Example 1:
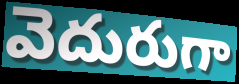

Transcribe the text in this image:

వెదురుగా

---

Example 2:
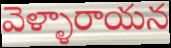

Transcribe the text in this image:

వెళ్ళారాయన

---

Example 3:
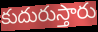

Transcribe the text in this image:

కుదురుస్తారు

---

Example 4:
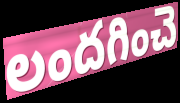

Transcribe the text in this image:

లందగించె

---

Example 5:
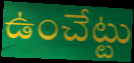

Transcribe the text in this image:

ఉంచేట్టు